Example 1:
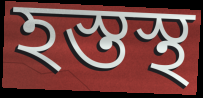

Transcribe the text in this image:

হস্তস্থ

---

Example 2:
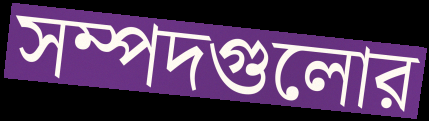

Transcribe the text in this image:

সম্পদগুলোর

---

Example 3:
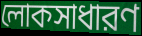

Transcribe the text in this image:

লোকসাধারণ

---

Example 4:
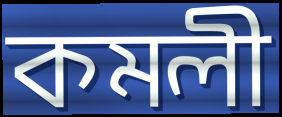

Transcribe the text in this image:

কমলী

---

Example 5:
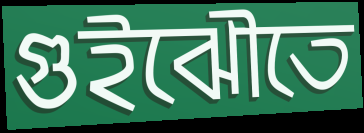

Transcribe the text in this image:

গুইঝৌতে